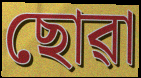
ছোৱা